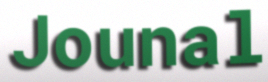
Jounal